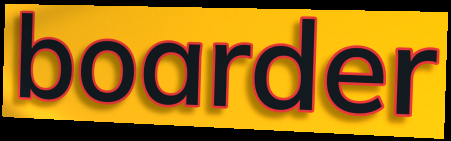
boarder